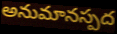
అనుమానస్పద